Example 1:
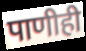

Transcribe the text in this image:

पाणीही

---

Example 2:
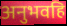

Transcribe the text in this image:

अनुभवहि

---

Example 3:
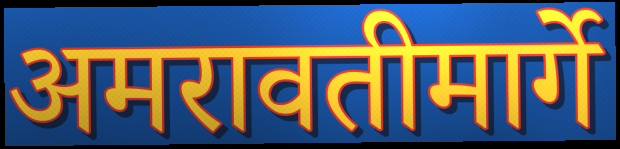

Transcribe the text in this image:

अमरावतीमार्गे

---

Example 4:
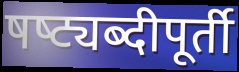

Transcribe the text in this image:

षष्ट्यब्दीपूर्ती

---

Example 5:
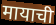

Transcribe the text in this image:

मायाची